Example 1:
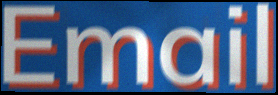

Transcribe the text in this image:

Email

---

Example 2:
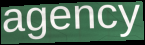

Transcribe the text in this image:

agency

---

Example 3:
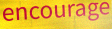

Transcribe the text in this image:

encourage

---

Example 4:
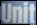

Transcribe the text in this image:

Unit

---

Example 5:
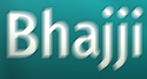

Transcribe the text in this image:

Bhajji